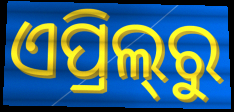
ଏପ୍ରିଲ୍‍ରୁ